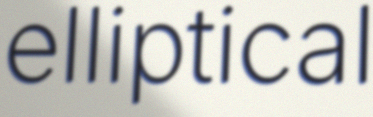
elliptical